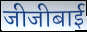
जीजीबाई